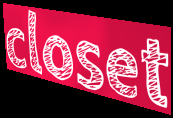
closet